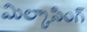
మిల్కాసింగ్